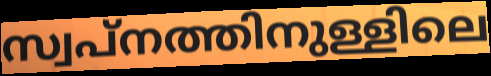
സ്വപ്നത്തിനുള്ളിലെ